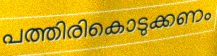
പത്തിരികൊടുക്കണം